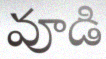
వూడి